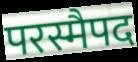
परस्मैपद